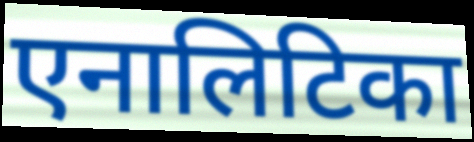
एनालिटिका